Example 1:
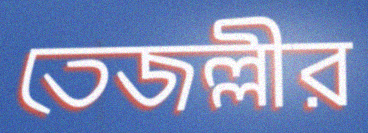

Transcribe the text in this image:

তেজল্লীর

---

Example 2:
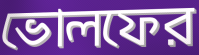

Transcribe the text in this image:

ভোলফের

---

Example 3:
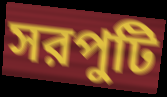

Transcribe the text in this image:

সরপুটি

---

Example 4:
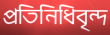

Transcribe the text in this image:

প্রতিনিধিবৃন্দ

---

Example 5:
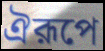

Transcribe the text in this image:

ঐরূপে